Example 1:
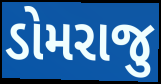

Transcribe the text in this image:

ડોમરાજુ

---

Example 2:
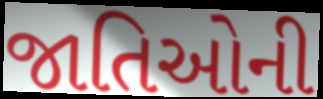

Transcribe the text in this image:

જાતિઓની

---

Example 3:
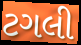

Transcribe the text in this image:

ટગલી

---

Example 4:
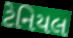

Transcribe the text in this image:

ટેનિયલ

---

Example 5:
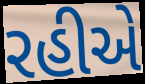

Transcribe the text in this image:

રહીએ